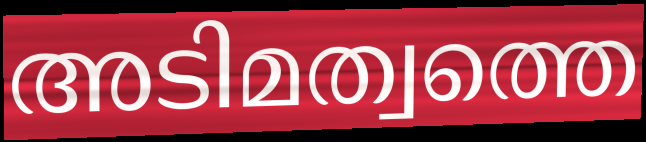
അടിമത്വത്തെ